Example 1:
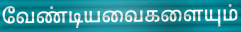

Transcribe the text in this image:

வேண்டியவைகளையும்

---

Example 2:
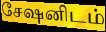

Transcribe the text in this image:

சேஷனிடம்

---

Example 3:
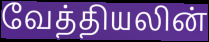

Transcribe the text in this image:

வேத்தியலின்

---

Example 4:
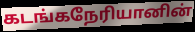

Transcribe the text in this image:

கடங்கநேரியானின்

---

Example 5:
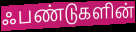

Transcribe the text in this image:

ஃபண்டுகளின்